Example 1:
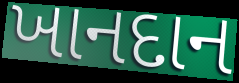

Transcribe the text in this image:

ખાનદાન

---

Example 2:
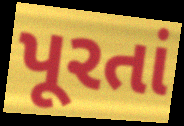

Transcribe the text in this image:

પૂરતાં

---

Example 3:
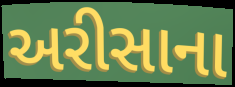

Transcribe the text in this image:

અરીસાના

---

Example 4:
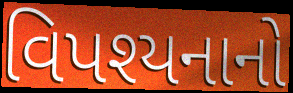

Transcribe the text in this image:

વિપશ્યનાનો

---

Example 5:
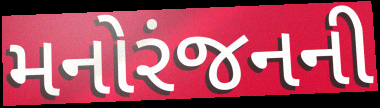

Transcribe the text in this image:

મનોરંજનની